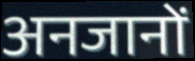
अनजानों